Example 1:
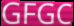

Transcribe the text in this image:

GFGC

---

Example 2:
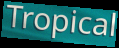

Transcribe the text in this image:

Tropical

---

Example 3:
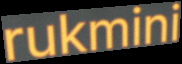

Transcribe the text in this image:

rukmini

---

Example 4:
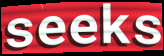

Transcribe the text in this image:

seeks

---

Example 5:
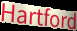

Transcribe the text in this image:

Hartford